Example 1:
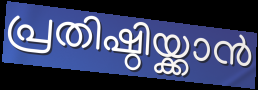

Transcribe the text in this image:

പ്രതിഷ്ഠിയ്ക്കാൻ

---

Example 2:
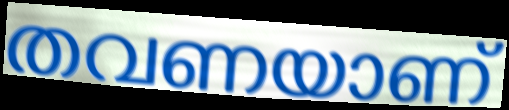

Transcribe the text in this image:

തവണയാണ്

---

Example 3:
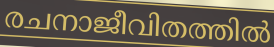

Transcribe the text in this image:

രചനാജീവിതത്തിൽ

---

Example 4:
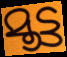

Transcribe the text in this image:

മൂട്ട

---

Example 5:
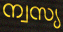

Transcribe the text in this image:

ന്വസ്യ